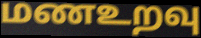
மணஉறவு